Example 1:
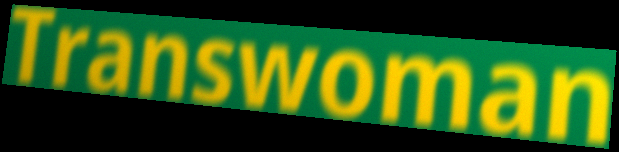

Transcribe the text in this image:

Transwoman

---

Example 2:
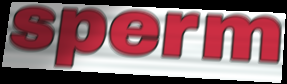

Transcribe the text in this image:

sperm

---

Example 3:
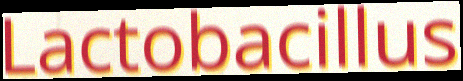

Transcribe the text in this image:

Lactobacillus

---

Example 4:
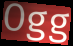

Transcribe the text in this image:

Ogg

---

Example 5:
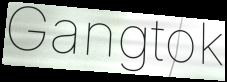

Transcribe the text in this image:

Gangtok